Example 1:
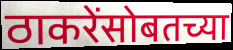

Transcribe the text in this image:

ठाकरेंसोबतच्या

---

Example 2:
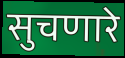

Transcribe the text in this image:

सुचणारे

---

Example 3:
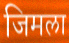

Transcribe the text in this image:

जिमला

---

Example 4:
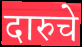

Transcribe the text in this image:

दारुचे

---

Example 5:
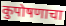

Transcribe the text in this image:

कुपोषणाचा